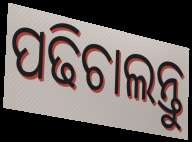
ପଢିଚାଲନ୍ତୁ